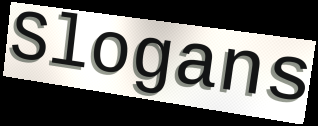
Slogans